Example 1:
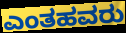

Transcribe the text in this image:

ಎಂತಹವರು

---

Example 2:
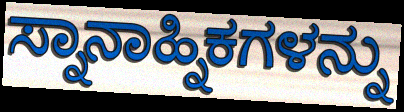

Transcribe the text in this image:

ಸ್ನಾನಾಹ್ನಿಕಗಳನ್ನು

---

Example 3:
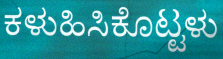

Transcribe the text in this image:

ಕಳುಹಿಸಿಕೊಟ್ಟಳು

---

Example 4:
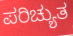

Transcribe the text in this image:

ಪರಿಚ್ಯುತ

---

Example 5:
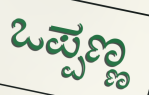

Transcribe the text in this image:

ಒಪ್ಪಣ್ಣ